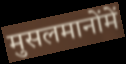
मुसलमानोंमें